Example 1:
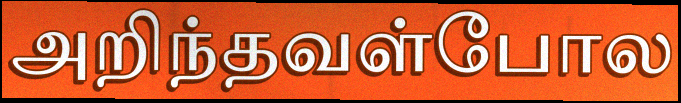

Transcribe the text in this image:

அறிந்தவள்போல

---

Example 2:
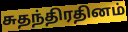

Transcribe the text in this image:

சுதந்திரதினம்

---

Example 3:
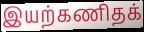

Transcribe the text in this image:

இயற்கணிதக்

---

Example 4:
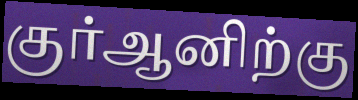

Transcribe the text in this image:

குர்ஆனிற்கு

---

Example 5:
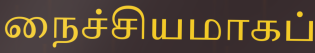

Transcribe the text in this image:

நைச்சியமாகப்